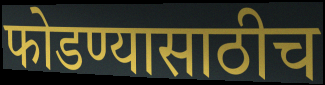
फोडण्यासाठीच